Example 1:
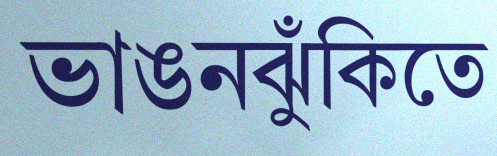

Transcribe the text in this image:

ভাঙনঝুঁকিতে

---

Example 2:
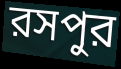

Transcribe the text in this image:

রসপুর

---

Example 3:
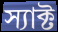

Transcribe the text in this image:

স্যাক্ট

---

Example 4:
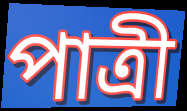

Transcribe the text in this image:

পাত্রী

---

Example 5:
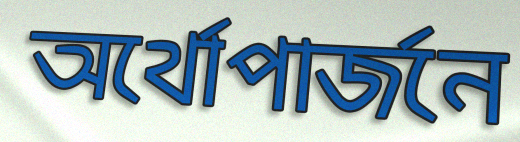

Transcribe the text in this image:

অর্থোপার্জনে